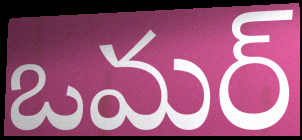
ఒమర్